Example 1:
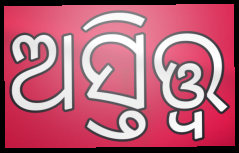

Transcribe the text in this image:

ଅସ୍ତିତ୍ତ୍ବ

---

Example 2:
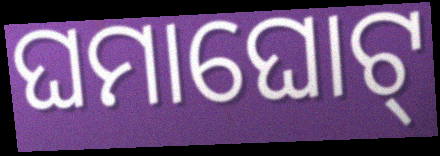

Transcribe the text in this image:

ଘମାଘୋଟ୍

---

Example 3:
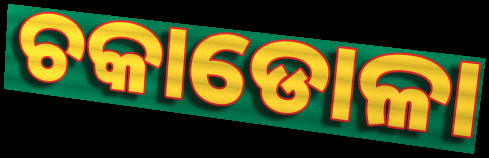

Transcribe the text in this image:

ଚକାଡୋଳା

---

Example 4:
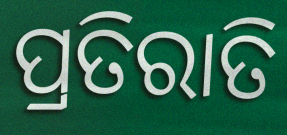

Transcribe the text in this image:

ପ୍ରତିରାତି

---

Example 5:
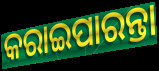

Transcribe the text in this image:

କରାଇପାରନ୍ତା